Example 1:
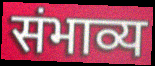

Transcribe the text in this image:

संभाव्य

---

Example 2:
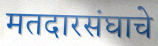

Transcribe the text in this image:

मतदारसंघाचे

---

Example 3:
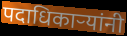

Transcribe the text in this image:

पदाधिकाऱ्यांनी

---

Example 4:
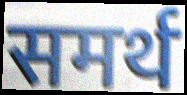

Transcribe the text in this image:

समर्थ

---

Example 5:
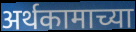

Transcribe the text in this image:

अर्थकामाच्या